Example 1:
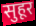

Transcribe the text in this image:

सुहूर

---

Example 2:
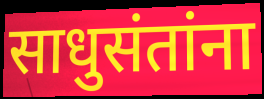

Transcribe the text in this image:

साधुसंतांना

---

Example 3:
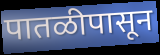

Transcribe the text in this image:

पातळीपासून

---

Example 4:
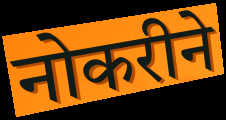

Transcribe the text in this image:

नोकरीने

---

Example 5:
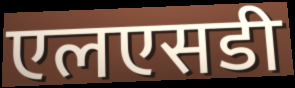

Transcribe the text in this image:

एलएसडी